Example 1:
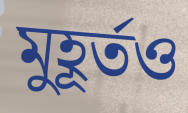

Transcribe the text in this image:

মুহূর্তও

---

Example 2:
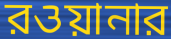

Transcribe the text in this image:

রওয়ানার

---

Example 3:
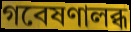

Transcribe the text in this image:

গবেষণালব্ধ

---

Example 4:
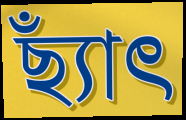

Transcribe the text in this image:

ছ্যাঁৎ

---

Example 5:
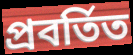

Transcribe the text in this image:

প্রবর্তিত